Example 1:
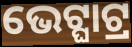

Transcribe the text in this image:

ଭେଟ୍ଘାଟ୍ର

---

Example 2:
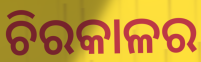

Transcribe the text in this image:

ଚିରକାଳର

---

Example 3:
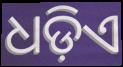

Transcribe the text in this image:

ଧଡ଼ିଏ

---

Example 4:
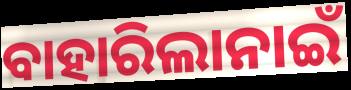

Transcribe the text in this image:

ବାହାରିଲାନାଇଁ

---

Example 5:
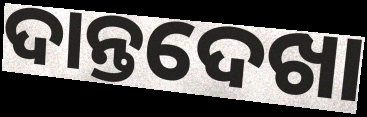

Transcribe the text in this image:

ଦାନ୍ତଦେଖା